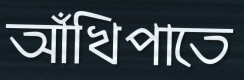
আঁখিপাতে